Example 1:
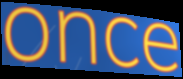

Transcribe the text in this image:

once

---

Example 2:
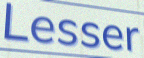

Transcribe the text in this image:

Lesser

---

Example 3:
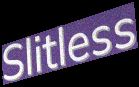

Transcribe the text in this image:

Slitless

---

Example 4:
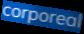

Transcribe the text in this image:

corporeal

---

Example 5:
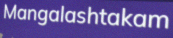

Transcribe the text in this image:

Mangalashtakam